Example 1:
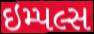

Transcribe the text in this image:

ઇમ્પલ્સ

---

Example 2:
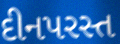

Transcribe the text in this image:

દીનપરસ્ત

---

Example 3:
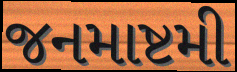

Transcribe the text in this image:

જનમાષ્ટમી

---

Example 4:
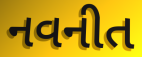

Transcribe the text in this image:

નવનીત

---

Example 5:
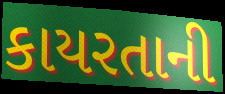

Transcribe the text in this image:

કાયરતાની